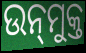
ଉନ୍‍ମୁକ୍ତ